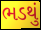
ભડથું